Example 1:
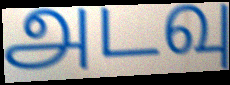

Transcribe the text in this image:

அடவு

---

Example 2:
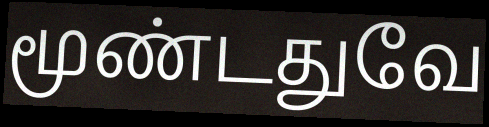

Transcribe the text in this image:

மூண்டதுவே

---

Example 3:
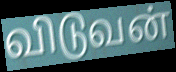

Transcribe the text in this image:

விடுவன்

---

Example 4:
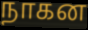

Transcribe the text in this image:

நாகன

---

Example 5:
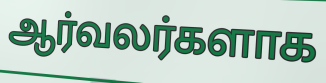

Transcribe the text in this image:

ஆர்வலர்களாக